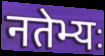
नतेभ्यः